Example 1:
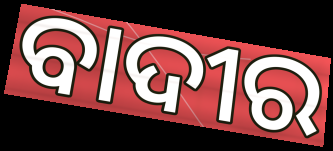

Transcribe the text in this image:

ବାଦୀର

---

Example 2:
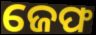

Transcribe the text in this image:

ଜେଫ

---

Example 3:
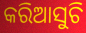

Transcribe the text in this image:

କରିଆସୁଚି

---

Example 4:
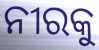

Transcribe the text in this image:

ନୀରକୁ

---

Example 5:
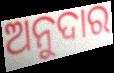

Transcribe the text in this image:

ଅନୁଦାର